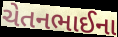
ચેતનભાઈના